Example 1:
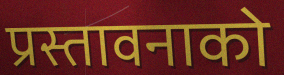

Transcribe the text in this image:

प्रस्तावनाको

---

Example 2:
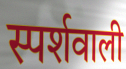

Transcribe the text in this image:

स्पर्शवाली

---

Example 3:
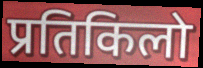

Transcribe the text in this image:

प्रतिकिलो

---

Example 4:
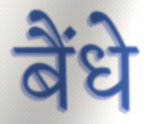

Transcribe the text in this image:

बैंधे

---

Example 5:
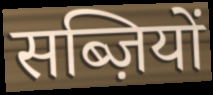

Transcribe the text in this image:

सब्ज़ियों